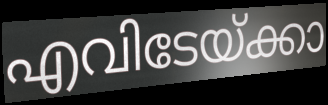
എവിടേയ്ക്കാ